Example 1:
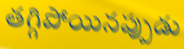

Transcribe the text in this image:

తగ్గిపోయినప్పుడు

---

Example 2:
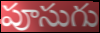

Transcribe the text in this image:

పూసుగు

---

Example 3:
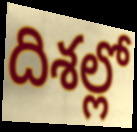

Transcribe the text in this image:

దిశల్లో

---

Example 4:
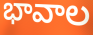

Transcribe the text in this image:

భావాల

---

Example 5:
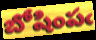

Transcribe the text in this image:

బోషింపఁ